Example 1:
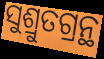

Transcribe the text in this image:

ସୁଶ୍ରୁତଗ୍ରନ୍ଥ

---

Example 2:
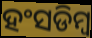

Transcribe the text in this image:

ହଂସଡିମ୍ବ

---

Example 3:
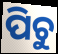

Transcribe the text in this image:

ପିଚୁ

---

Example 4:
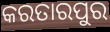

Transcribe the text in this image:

କରତାରପୁର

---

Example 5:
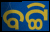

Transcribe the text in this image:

ବଟ୍ଟି